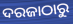
ଦରଜାଠାରୁ